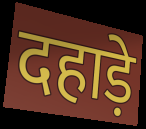
दहाड़े